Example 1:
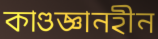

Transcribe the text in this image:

কাণ্ডজ্ঞানহীন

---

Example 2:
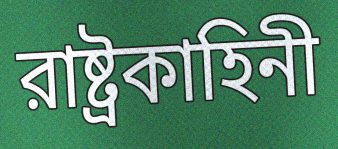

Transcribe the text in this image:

রাষ্ট্রকাহিনী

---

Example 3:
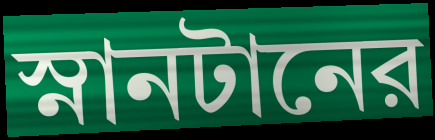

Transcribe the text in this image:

স্নানটানের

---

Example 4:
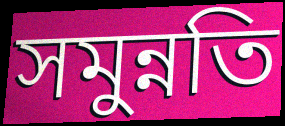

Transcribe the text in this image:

সমুন্নতি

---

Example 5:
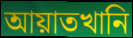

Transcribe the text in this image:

আয়াতখানি